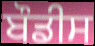
ਬੌਡੀਸ